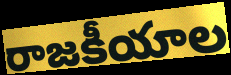
రాజకీయాల